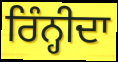
ਰਿੰਨ੍ਹੀਦਾ